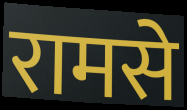
रामसे